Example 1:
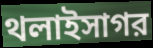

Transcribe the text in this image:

থলাইসাগর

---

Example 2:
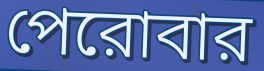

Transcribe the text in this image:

পেরোবার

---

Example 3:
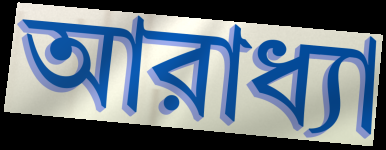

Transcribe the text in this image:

আরাধ্যা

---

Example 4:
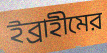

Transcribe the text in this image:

ইব্রাহীমের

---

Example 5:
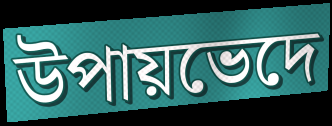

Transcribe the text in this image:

উপায়ভেদে